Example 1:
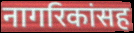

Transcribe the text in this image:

नागरिकांसह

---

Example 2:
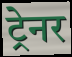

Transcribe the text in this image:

ट्रेनर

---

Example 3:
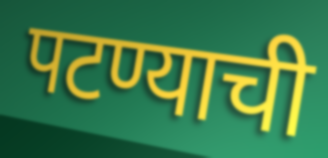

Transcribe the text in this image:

पटण्याची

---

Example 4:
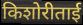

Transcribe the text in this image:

किशोरीताई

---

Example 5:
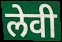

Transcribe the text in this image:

लेवी